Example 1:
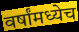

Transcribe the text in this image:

वर्षांमध्येच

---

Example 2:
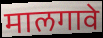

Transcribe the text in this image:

मालगावे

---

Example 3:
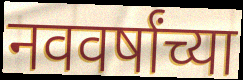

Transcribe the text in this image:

नववर्षांच्या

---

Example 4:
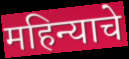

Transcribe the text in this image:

महिन्याचे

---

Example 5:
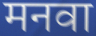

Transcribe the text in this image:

मनवा